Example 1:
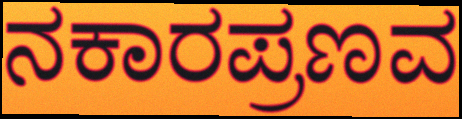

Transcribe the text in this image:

ನಕಾರಪ್ರಣವ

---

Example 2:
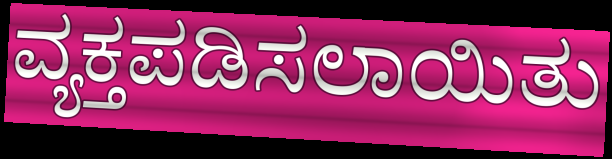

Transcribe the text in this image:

ವ್ಯಕ್ತಪಡಿಸಲಾಯಿತು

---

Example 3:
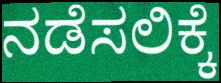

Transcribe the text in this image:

ನಡೆಸಲಿಕ್ಕೆ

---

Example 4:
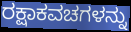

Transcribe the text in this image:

ರಕ್ಷಾಕವಚಗಳನ್ನು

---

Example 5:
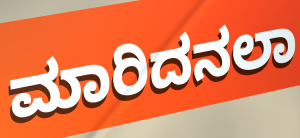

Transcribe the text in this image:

ಮಾರಿದನಲಾ